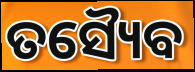
ତସ୍ୟୈବ